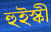
হুইস্কী